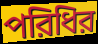
পরিধির